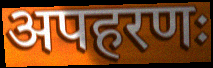
अपहरणः